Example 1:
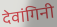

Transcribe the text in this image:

देवांगिनी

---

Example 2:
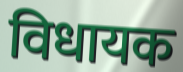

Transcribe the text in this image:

विधायक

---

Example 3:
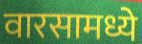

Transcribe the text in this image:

वारसामध्ये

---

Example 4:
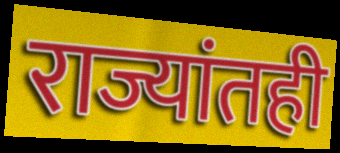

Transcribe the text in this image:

राज्यांतही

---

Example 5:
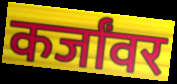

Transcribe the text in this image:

कर्जांवर